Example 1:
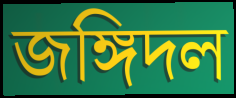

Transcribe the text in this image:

জঙ্গিদল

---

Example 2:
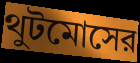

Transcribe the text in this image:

থুটমোসের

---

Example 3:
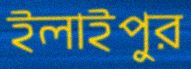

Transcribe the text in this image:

ইলাইপুর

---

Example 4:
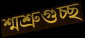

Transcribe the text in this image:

শ্মশ্রুগুচ্ছ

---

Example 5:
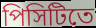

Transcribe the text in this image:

পিসিটিতে